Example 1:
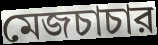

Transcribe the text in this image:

মেজচাচার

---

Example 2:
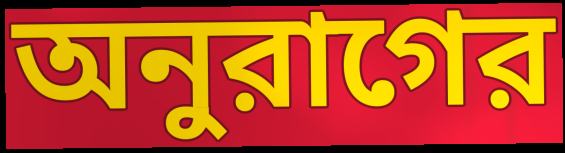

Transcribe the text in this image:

অনুরাগের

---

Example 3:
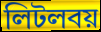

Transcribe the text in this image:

লিটলবয়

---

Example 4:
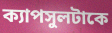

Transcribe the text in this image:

ক্যাপসুলটাকে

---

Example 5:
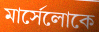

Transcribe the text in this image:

মার্সেলোকে